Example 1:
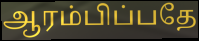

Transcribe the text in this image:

ஆரம்பிப்பதே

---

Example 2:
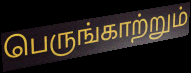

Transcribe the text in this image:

பெருங்காற்றும்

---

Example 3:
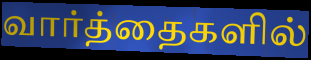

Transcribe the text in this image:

வார்த்தைகளில்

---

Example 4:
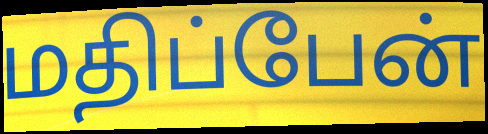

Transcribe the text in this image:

மதிப்பேன்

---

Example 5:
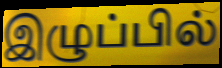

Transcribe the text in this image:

இழுப்பில்